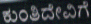
ಕುಂತಿದೇವಿಗೆ